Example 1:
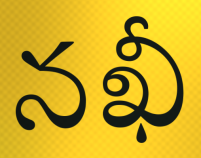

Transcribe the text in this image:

నఖీ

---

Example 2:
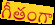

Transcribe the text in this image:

గీతంగా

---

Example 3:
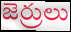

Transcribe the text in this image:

జెర్రులు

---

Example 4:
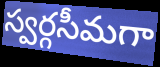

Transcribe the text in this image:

స్వర్గసీమగా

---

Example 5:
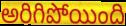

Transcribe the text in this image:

అరిగిపోయింది